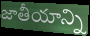
జాతీయాన్ని